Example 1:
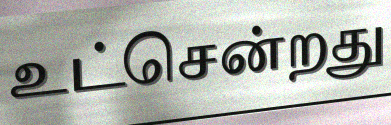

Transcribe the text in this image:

உட்சென்றது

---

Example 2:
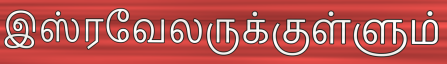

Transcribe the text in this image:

இஸ்ரவேலருக்குள்ளும்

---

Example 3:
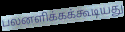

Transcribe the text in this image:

பலனளிக்கக்கூடியது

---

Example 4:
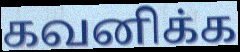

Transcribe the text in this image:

கவனிக்க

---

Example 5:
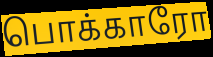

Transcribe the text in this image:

பொக்காரோ